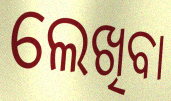
ଲେଖିବା